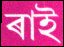
ৰাই